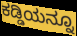
ಕಡ್ಡಿಯನ್ನೂ